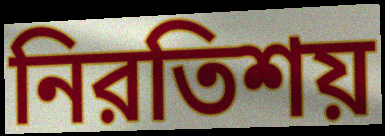
নিরতিশয়